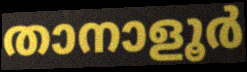
താനാളൂർ